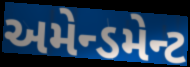
અમેન્ડમેન્ટ